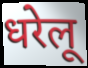
धरेलू